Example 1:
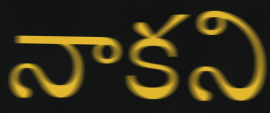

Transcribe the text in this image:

నాకని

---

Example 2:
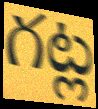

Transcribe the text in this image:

గట్ల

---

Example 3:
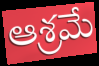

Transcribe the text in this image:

ఆశ్రమే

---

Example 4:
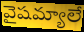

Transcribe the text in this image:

వైషమ్యాలే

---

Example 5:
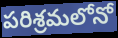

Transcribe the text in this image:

పరిశ్రమలోనో